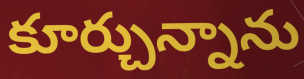
కూర్చున్నాను